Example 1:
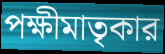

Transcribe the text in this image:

পক্ষীমাতৃকার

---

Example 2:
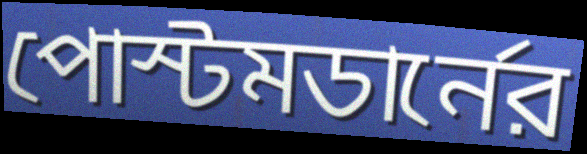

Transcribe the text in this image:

পোস্টমডার্নের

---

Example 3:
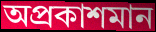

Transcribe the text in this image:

অপ্রকাশমান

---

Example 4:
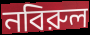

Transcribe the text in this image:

নবিরুল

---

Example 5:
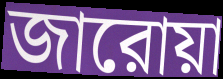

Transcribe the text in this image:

জারোয়া